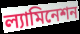
ল্যামিনেশন